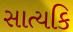
સાત્યકિ